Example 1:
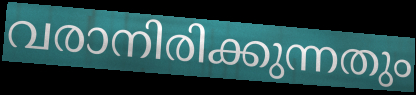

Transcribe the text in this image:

വരാനിരിക്കുന്നതും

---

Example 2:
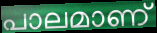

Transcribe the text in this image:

പാലമാണ്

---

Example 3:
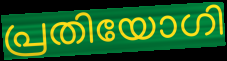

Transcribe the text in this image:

പ്രതിയോഗി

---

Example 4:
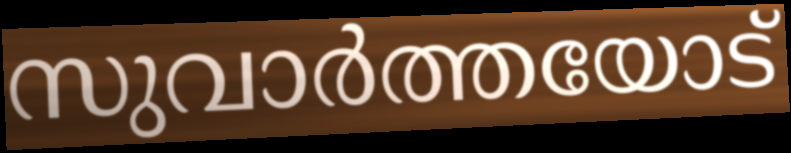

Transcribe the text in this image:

സുവാർത്തയോട്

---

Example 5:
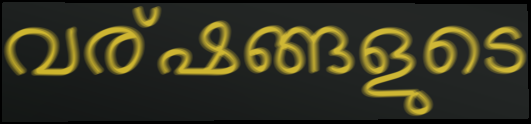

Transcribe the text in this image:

വര്ഷങ്ങളുടെ